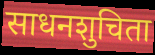
साधनशुचिता